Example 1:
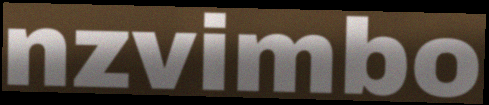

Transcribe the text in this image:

nzvimbo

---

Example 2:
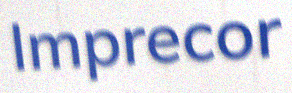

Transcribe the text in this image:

Imprecor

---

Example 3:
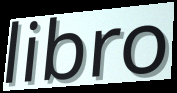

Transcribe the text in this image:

libro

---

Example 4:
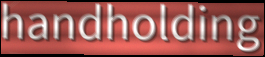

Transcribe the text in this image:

handholding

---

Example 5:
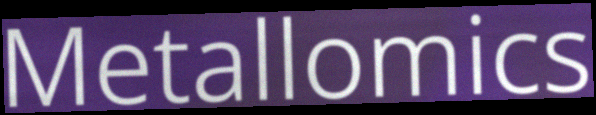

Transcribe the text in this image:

Metallomics